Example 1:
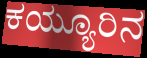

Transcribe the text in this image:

ಕಯ್ಯೂರಿನ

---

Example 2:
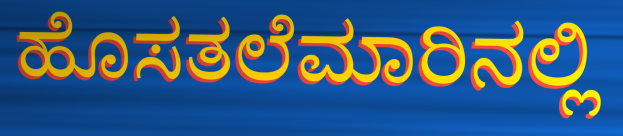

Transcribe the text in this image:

ಹೊಸತಲೆಮಾರಿನಲ್ಲಿ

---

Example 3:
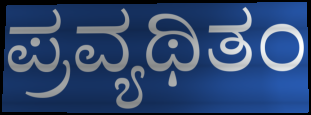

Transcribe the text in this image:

ಪ್ರವ್ಯಥಿತಂ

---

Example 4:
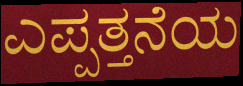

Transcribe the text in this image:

ಎಪ್ಪತ್ತನೆಯ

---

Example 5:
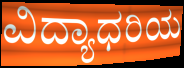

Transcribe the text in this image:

ವಿದ್ಯಾಧರಿಯ